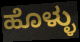
ಹೊಳ್ಳು